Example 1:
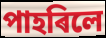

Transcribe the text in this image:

পাহৰিলে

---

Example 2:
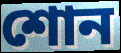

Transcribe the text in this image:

শোন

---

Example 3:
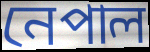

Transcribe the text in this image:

নেপাল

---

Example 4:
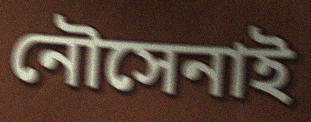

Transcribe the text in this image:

নৌসেনাই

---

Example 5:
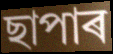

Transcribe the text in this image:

ছাপাৰ